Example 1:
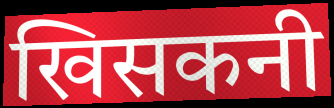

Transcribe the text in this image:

खिसकनी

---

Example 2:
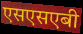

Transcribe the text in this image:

एसएसएबी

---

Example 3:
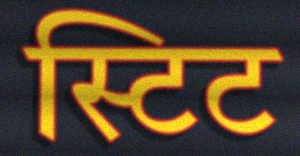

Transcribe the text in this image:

स्टिट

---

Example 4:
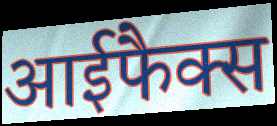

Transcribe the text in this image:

आईफैक्स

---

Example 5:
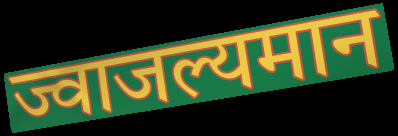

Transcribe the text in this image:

ज्वाजल्यमान